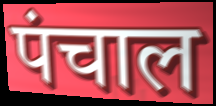
पंचाल